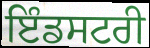
ਇੰਡਸਟਰੀ